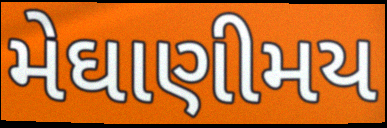
મેઘાણીમય